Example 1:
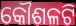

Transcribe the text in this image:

କୌଶଳଟି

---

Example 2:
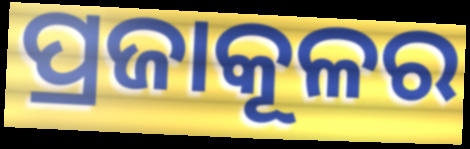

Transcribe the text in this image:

ପ୍ରଜାକୂଳର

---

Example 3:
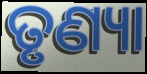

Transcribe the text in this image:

ତୃଣ୍ୟା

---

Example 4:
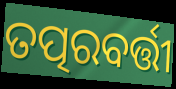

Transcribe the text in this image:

ତତ୍ପରବର୍ତ୍ତୀ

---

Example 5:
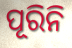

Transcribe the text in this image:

ପୂରିନି